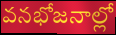
వనభోజనాల్లో